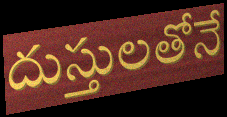
దుస్తులతోనే